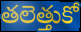
తలెత్తుకో